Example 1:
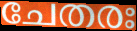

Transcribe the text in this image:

ചേതരഃ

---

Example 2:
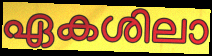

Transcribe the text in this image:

ഏകശിലാ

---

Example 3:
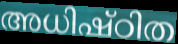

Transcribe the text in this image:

അധിഷ്ഠിത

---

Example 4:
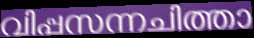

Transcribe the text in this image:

വിപ്പസന്നചിത്താ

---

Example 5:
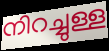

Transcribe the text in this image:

നിറച്ചുള്ള